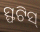
ସ୍ଫଟିସ୍